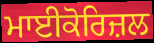
ਮਾਈਕੋਰਿਜ਼ਲ